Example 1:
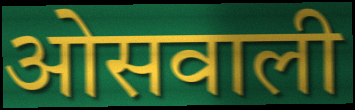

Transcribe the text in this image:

ओसवाली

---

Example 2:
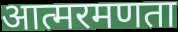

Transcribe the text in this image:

आत्मरमणता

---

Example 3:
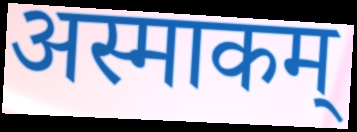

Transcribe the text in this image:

अस्माकम्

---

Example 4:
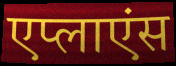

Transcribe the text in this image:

एप्लाएंस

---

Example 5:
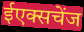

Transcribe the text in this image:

ईएक्सचेंज